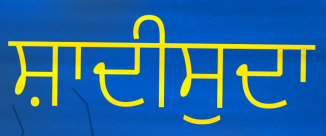
ਸ਼ਾਦੀਸੁਦਾ